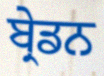
ਬ੍ਰੇਡਨ